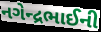
નગેન્દ્રભાઈની